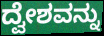
ದ್ವೇಶವನ್ನು